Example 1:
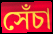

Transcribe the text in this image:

সেঁচা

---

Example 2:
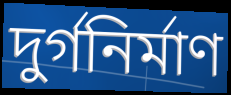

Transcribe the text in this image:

দুর্গনির্মাণ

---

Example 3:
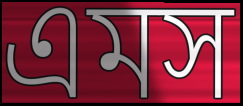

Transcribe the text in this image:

এমস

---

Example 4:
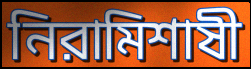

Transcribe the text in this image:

নিরামিশাষী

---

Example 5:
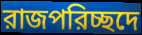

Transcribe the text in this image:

রাজপরিচ্ছদে